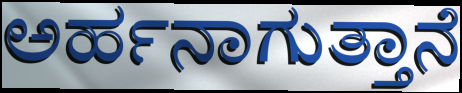
ಅರ್ಹನಾಗುತ್ತಾನೆ